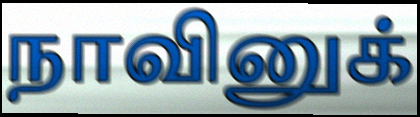
நாவினுக்